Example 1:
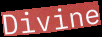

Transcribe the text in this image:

Divine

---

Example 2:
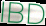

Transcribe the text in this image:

IBD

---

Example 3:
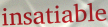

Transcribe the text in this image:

insatiable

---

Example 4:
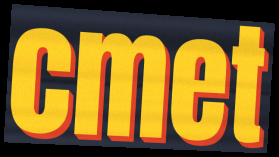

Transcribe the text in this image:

cmet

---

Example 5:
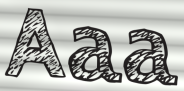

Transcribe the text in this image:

Aaa